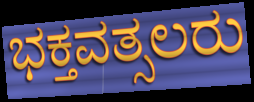
ಭಕ್ತವತ್ಸಲರು